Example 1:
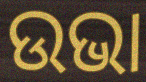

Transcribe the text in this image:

ଉଭା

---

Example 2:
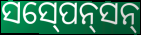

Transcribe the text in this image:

ସସ୍‍ପେନ୍‍ସନ୍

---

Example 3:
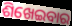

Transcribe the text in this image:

ଶିଖେଇବାର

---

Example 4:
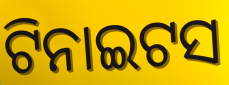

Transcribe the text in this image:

ଟିନାଇଟସ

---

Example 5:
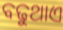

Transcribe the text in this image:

ବଢୁଥାଏ